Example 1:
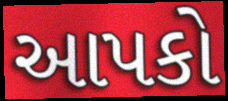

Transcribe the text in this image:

આપકો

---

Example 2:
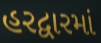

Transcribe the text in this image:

હરદ્વારમાં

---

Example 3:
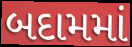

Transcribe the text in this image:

બદામમાં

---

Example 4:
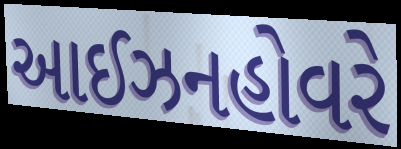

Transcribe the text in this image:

આઈઝનહોવરે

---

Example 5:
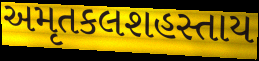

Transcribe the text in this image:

અમૃતકલશહસ્તાય